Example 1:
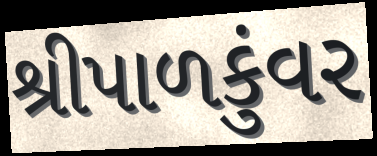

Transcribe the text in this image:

શ્રીપાળકુંવર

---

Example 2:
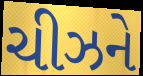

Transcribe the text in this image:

ચીઝને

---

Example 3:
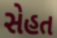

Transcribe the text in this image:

સેહત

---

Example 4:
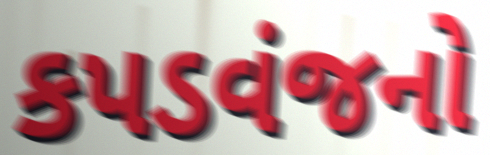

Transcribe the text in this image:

કપડવંજનો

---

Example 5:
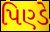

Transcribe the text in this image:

પિણ્ડે